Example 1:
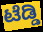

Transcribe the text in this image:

ಟೆಡ್ಡಿ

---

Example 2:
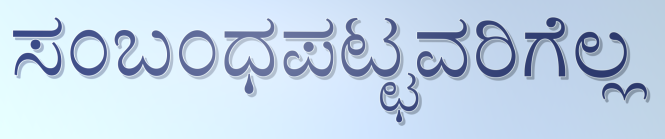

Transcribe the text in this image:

ಸಂಬಂಧಪಟ್ಟವರಿಗೆಲ್ಲ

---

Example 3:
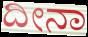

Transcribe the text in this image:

ದೀನಾ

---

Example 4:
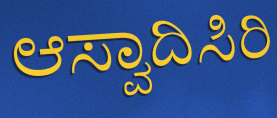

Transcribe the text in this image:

ಆಸ್ವಾದಿಸಿರಿ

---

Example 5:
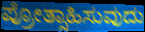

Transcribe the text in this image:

ಪ್ರೋತ್ಸಾಹಿಸುವುದು